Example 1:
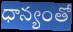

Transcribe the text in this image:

ధాన్యంతో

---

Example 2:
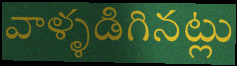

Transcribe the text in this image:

వాళ్ళడిగినట్లు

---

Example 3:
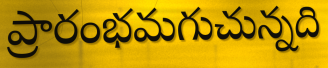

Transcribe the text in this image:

ప్రారంభమగుచున్నది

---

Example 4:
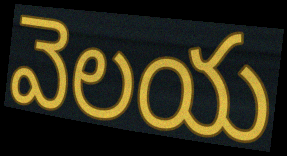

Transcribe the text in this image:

వెలయ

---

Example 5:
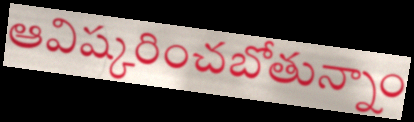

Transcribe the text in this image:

ఆవిష్కరించబోతున్నాం